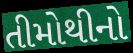
તીમોથીનો